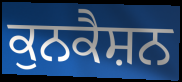
ਕੁਨਕੈਸ਼ਨ